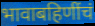
भावाबहिणींचं